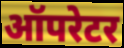
ऑपरेटर